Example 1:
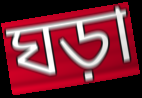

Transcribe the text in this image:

ঘড়া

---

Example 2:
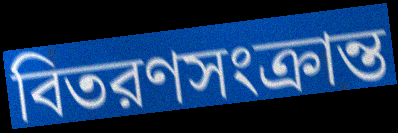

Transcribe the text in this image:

বিতরণসংক্রান্ত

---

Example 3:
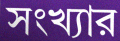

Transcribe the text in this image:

সংখ্যার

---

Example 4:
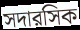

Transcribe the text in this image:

সদারসিক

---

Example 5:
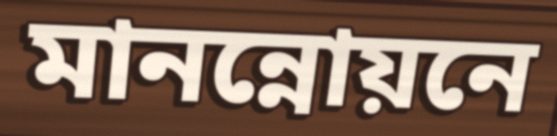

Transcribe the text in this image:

মানন্নোয়নে